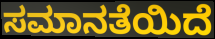
ಸಮಾನತೆಯಿದೆ